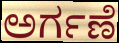
ಅರ್ಗಣೆ